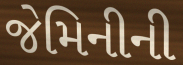
જેમિનીની